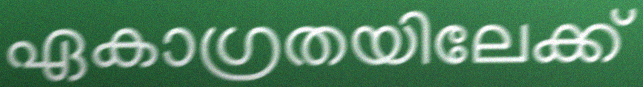
ഏകാഗ്രതയിലേക്ക്